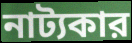
নাট্যকার